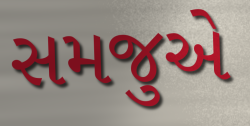
સમજુએ